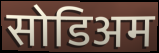
सोडिअम